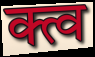
क्त्व